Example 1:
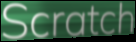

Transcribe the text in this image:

Scratch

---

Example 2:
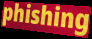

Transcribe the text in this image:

phishing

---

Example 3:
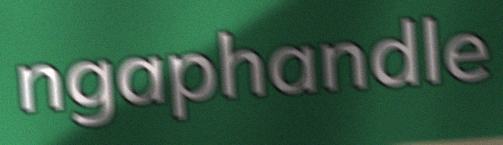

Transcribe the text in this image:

ngaphandle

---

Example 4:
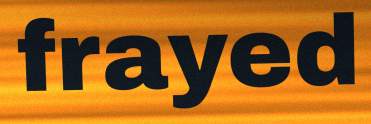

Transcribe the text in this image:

frayed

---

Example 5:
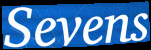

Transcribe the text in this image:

Sevens